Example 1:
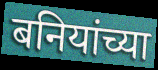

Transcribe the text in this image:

बनियांच्या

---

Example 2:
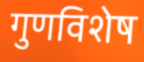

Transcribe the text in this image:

गुणविशेष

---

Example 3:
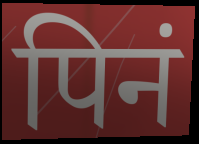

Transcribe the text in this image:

पिनं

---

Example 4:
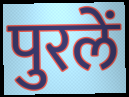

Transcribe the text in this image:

पुरलें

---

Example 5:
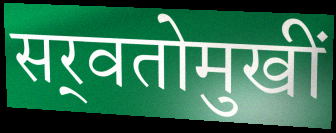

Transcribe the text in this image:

सर्वतोमुखीं